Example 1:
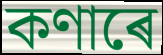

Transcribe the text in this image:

কণাৰে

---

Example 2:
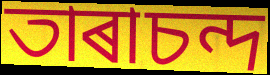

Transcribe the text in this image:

তাৰাচন্দ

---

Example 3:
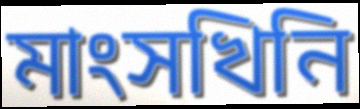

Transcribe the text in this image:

মাংসখিনি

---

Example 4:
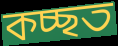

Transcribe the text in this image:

কচ্ছত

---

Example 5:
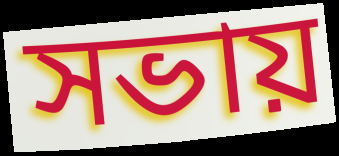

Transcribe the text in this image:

সভায়